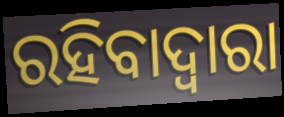
ରହିବାଦ୍ଵାରା